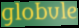
globule